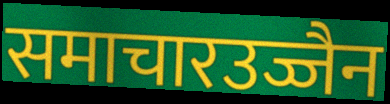
समाचारउज्जैन